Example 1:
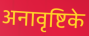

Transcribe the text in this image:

अनावृष्टिके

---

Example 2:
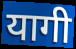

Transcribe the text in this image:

यागी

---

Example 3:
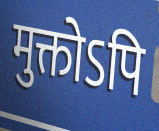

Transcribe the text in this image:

मुक्तोऽपि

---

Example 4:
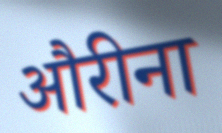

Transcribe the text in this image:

औरीना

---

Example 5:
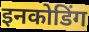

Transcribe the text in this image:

इनकोडिंग